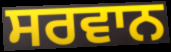
ਸਰਵਾਨ